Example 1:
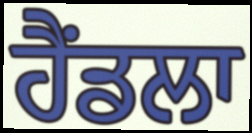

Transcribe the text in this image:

ਹੈਂਡਲਾ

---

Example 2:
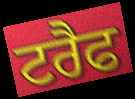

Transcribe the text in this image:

ਟਰੈਫ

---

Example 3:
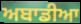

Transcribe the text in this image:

ਅਬਾਡੀਆ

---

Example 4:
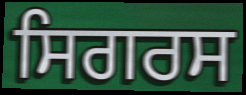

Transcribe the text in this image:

ਸਿਗਰਸ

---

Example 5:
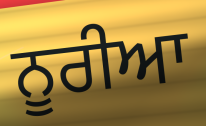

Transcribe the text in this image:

ਨੂਰੀਆ